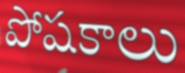
పోషకాలు